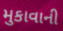
મુકાવાની